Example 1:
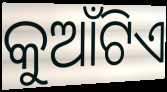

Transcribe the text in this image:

କୁଆଁଟିଏ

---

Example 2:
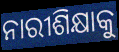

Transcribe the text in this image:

ନାରୀଶିକ୍ଷାକୁ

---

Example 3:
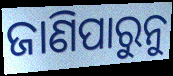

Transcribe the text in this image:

ଜାଣିପାରୁନୁ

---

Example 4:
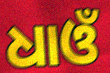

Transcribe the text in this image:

ଧାଓଁ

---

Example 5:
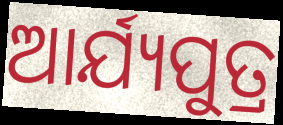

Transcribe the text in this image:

ଆର୍ଯ୍ୟପୁତ୍ର